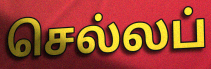
செல்லப்